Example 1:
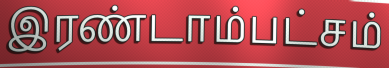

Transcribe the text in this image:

இரண்டாம்பட்சம்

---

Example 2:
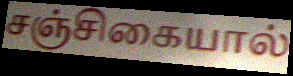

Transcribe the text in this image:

சஞ்சிகையால்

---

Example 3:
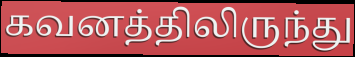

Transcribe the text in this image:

கவனத்திலிருந்து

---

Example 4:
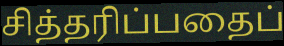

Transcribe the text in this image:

சித்தரிப்பதைப்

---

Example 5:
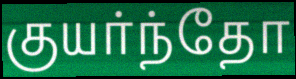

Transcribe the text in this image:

குயர்ந்தோ